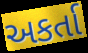
અકર્તા